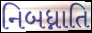
નિબધ્નાતિ